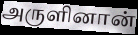
அருளினான்